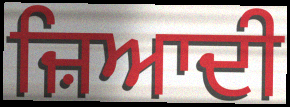
ਜ਼ਿਆਦੀ